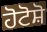
ਹੋਟੋਸ਼ੋ